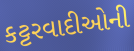
કટ્ટરવાદીઓની